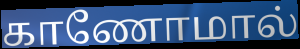
காணோமால்